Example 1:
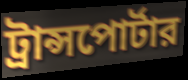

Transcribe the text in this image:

ট্রান্সপোর্টার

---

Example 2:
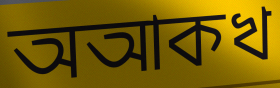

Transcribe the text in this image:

অআকখ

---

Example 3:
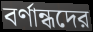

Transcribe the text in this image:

বর্ণান্ধদের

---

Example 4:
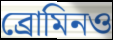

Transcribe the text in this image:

ব্রোমিনও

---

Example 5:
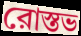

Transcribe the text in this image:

রোস্তভ